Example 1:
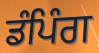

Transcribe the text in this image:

ਡੰਪਿੰਗ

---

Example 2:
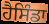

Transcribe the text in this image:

ਹੈਸਿੰਡਾ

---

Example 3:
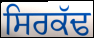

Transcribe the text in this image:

ਸਿਰਕੱਢ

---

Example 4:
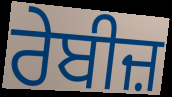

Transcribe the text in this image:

ਰੇਬੀਜ਼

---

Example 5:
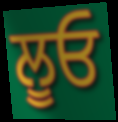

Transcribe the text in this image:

ਲੂਓ